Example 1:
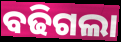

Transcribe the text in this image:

ବଢିଗଲା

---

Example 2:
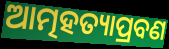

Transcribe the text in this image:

ଆତ୍ମହତ୍ୟାପ୍ରବଣ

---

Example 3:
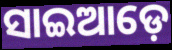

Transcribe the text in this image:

ସାଇଆଡ଼େ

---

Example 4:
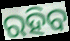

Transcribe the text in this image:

ରହିବ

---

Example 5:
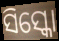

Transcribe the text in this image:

ସିସ୍କୋ